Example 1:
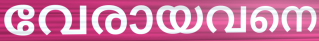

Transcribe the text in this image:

വേരായവനെ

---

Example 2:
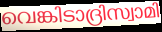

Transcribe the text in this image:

വെങ്കിടാദ്രിസ്വാമി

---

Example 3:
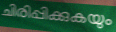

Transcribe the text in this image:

ചിരിപ്പിക്കുകയും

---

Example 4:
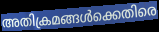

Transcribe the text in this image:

അതിക്രമങ്ങൾക്കെതിരെ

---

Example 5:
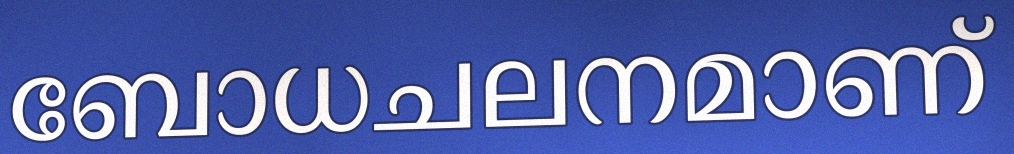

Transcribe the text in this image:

ബോധചലനമാണ്